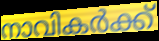
നാവികർക്ക്